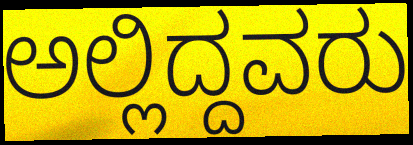
ಅಲ್ಲಿದ್ದವರು